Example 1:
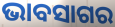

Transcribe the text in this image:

ଭାବସାଗର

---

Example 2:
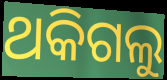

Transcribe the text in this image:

ଥକିଗଲୁ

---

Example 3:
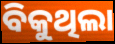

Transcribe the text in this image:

ବିକୁଥିଲା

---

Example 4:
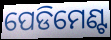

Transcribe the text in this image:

ପେଡିମେଣ୍ଟ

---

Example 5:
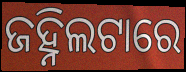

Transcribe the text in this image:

ଜହ୍ନିଲଟାରେ